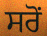
ਸਰੋਂ